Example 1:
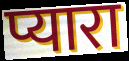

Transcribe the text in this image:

प्यारा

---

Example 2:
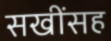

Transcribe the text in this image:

सखींसह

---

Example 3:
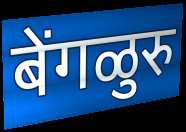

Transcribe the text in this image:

बेंगळुरु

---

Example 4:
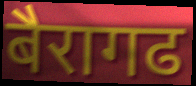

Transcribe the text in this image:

बैरागढ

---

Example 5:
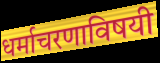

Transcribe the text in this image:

धर्माचरणाविषयी